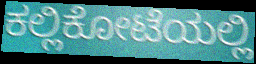
ಕಲ್ಲಿಕೋಟೆಯಲ್ಲಿ